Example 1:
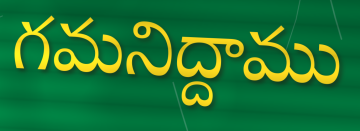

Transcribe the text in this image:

గమనిద్దాము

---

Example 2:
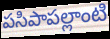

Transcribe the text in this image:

పసిపాపల్లాంటి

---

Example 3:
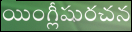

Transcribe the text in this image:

యింగ్లీషురచన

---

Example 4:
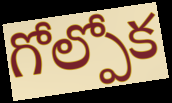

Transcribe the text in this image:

గోల్పోక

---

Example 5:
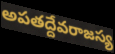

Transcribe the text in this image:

అపతద్దేవరాజస్య